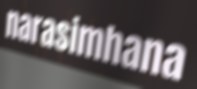
narasimhana